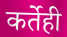
कर्तेही